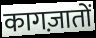
कागज़ातों